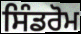
ਸਿੰਡਰੋਮ